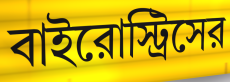
বাইরোস্ট্রিসের